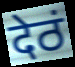
देठं